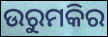
ଉରୁମକିର